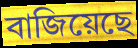
বাজিয়েছে